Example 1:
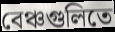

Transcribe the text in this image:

বেঞ্চগুলিতে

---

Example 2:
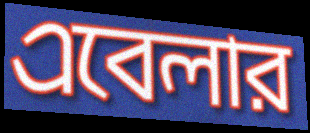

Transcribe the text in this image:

এবেলার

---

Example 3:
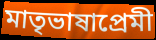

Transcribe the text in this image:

মাতৃভাষাপ্রেমী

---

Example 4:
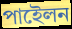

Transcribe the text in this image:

পাইেলন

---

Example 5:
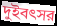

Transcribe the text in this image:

দুইবৎসর